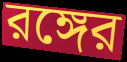
রঙ্গের